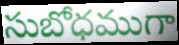
సుబోధముగా